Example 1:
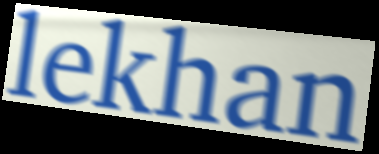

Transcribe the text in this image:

lekhan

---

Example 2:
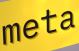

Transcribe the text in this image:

meta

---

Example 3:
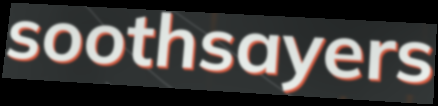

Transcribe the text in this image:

soothsayers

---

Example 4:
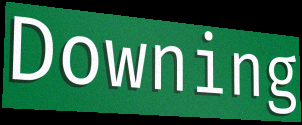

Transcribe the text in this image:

Downing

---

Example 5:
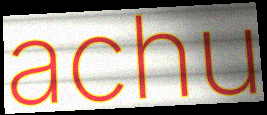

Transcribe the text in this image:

achu